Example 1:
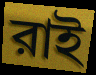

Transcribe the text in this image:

রাই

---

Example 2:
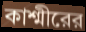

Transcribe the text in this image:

কাশ্মীরের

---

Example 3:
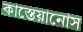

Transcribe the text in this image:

কাস্তেয়ানোস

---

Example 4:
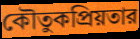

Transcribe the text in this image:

কৌতুকপ্রিয়তার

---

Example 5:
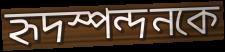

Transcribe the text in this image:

হৃদস্পন্দনকে